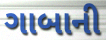
ગાબાની